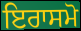
ਇਰਾਸਮੋ